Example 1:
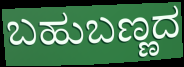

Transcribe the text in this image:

ಬಹುಬಣ್ಣದ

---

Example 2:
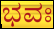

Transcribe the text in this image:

ಭವಃ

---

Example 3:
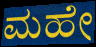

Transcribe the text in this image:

ಮಹೇ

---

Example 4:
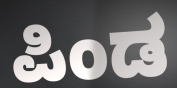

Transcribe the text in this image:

ಪಿಂಡ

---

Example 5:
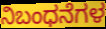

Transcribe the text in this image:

ನಿಬಂಧನೆಗಳ